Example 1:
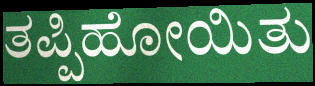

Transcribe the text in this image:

ತಪ್ಪಿಹೋಯಿತು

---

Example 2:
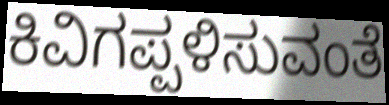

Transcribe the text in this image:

ಕಿವಿಗಪ್ಪಳಿಸುವಂತೆ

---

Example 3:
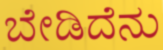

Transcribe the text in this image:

ಬೇಡಿದೆನು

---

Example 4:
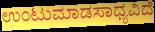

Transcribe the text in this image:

ಉಂಟುಮಾಡಸಾಧ್ಯವಿದೆ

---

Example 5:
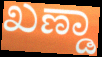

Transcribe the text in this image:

ಖಣ್ಡಾ